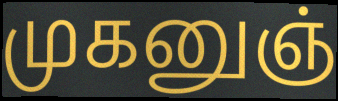
முகனுஞ்